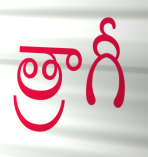
త్రాగీ